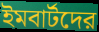
ইমবার্টদের